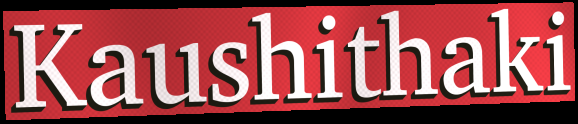
Kaushithaki